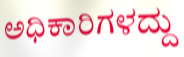
ಅಧಿಕಾರಿಗಳದ್ದು